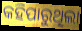
କହିପାରୁଥିଲା